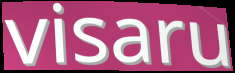
visaru